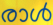
രാൾ